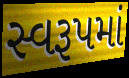
સ્વરૂપમાં